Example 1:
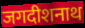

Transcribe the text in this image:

जगदीशनाथ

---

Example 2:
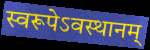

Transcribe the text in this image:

स्वरूपेऽवस्थानम्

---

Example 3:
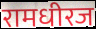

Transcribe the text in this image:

रामधीरज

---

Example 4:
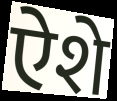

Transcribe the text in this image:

ऐशे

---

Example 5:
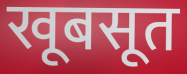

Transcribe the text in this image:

खूबसूत